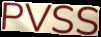
PVSS